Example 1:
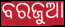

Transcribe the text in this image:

ବରଜୁଆ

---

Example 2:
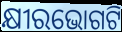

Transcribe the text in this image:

କ୍ଷୀରଭୋଗଟି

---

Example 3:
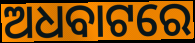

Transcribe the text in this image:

ଅଧବାଟରେ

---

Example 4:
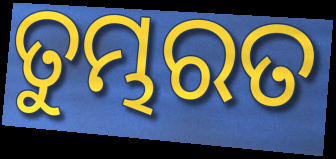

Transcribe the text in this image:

ତୁମ୍ଭରତ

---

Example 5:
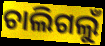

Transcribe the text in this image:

ଚାଲିଗଲୁଁ